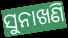
ସୁନାଖଣି